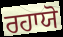
ਰਹਾਯੋ